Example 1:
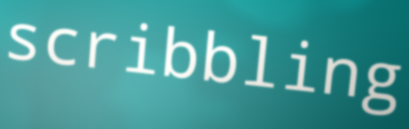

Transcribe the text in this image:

scribbling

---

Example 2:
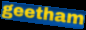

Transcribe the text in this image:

geetham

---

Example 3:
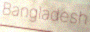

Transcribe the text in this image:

Bangladesh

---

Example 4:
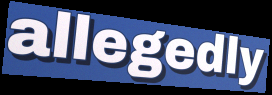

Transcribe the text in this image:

allegedly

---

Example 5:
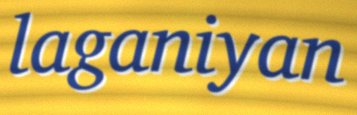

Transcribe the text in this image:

laganiyan